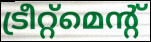
ട്രീറ്റ്മെന്റ്